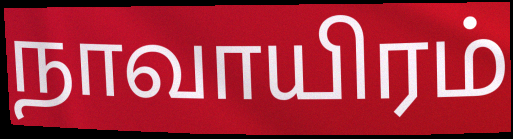
நாவாயிரம்